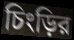
চিংড়ির